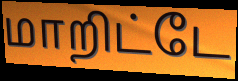
மாறிட்டே